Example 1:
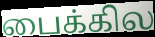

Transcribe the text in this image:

பைக்கில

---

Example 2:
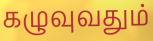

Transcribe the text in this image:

கழுவுவதும்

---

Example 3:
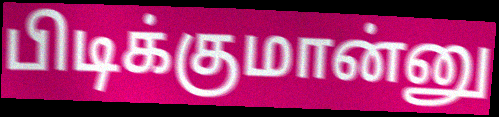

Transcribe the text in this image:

பிடிக்குமான்னு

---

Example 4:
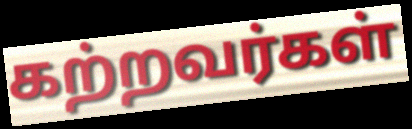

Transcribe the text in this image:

கற்றவர்கள்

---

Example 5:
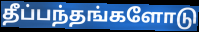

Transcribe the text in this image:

தீப்பந்தங்களோடு